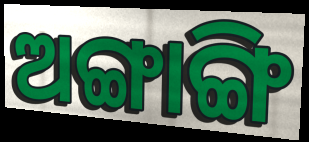
ଅଙ୍ଗାଙ୍ଗି